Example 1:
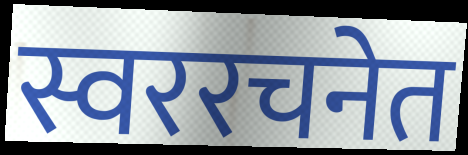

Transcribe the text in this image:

स्वररचनेत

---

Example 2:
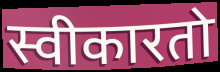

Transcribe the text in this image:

स्वीकारतो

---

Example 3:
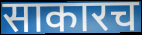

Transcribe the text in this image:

साकारच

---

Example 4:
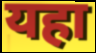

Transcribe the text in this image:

यहा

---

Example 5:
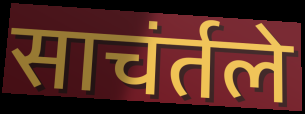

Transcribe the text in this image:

साचंर्तले